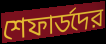
শেফার্ডদের